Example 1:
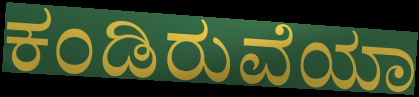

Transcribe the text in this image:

ಕಂಡಿರುವೆಯಾ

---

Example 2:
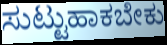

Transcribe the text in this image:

ಸುಟ್ಟುಹಾಕಬೇಕು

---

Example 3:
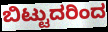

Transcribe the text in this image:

ಬಿಟ್ಟುದರಿಂದ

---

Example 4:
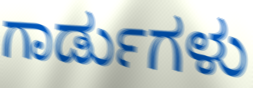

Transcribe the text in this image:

ಗಾರ್ಡುಗಳು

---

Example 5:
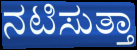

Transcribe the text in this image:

ನಟಿಸುತ್ತಾ